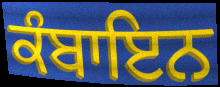
ਕੰਬਾਇਨ